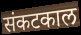
संकटकाल